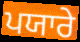
ਪਯਾਰੇ